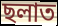
ছলাত